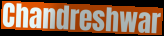
Chandreshwar